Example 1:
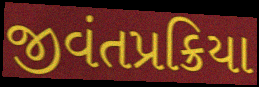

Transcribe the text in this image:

જીવંતપ્રક્રિયા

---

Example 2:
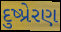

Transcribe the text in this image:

દુષ્પ્રેરણ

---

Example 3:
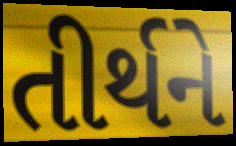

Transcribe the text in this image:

તીર્થને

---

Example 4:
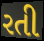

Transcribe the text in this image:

રતી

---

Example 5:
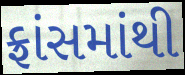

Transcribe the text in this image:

ફ્રાંસમાંથી